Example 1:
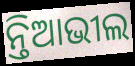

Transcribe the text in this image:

ନ୍ତିଆଭୀଲ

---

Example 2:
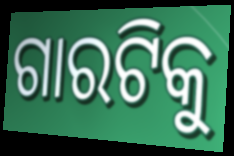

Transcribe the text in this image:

ଗାରଟିକୁ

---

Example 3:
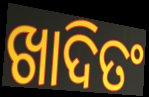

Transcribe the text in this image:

ଖାଦିତଂ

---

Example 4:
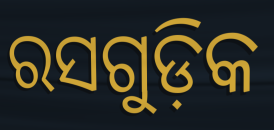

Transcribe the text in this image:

ରସଗୁଡ଼ିକ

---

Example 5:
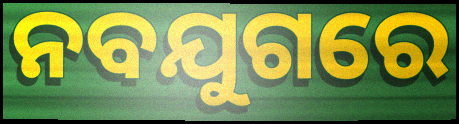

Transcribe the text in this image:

ନବଯୁଗରେ